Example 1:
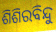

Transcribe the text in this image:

ଶିଶିରବିନ୍ଦୁ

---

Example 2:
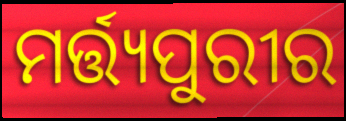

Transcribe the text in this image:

ମର୍ତ୍ତ୍ୟପୁରୀର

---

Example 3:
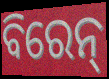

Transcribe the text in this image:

ବିରେନ୍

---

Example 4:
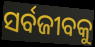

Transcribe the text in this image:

ସର୍ବଜୀବକୁ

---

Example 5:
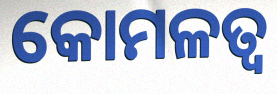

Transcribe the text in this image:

କୋମଳତ୍ୱ